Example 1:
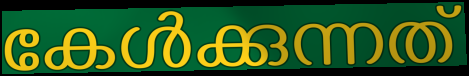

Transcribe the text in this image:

കേൾക്കുന്നത്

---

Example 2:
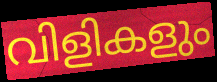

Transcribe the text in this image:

വിളികളും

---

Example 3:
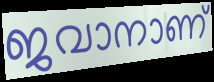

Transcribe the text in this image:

ജവാനാണ്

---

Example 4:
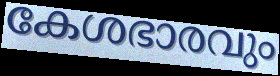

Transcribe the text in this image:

കേശഭാരവും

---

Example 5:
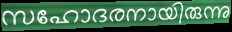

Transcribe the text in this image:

സഹോദരനായിരുന്നു